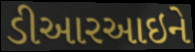
ડીઆરઆઇને